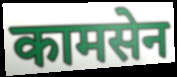
कामसेन